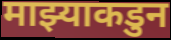
माझ्याकडुन